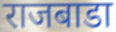
राजबाडा